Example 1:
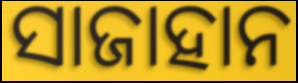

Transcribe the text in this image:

ସାଜାହାନ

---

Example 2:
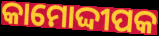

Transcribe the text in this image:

କାମୋଦ୍ଦୀପକ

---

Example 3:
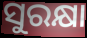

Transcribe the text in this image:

ସୁରକ୍ଷା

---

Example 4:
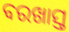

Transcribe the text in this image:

ବରଖାସ୍ତ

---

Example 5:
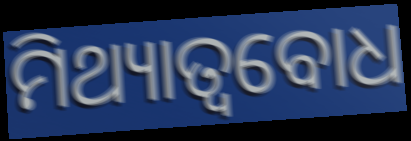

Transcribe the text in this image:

ମିଥ୍ୟାତ୍ୱବୋଧ